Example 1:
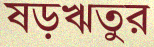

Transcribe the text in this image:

ষড়ঋতুর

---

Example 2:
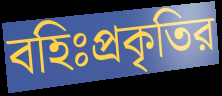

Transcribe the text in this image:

বহিঃপ্রকৃতির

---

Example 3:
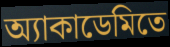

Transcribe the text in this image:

অ্যাকাডেমিতে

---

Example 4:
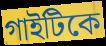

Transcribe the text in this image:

গাইটিকে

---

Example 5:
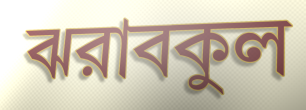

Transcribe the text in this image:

ঝরাবকুল